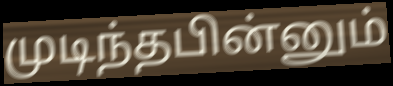
முடிந்தபின்னும்